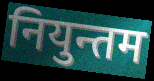
नियुन्तम